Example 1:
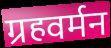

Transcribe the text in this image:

ग्रहवर्मन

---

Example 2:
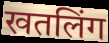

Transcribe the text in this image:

खतलिंग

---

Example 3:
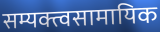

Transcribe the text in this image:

सम्यक्त्वसामायिक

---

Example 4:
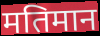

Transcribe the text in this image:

मतिमान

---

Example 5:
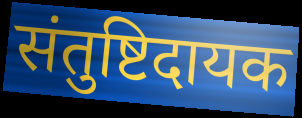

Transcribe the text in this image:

संतुष्टिदायक